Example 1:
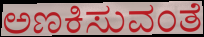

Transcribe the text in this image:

ಅಣಕಿಸುವಂತೆ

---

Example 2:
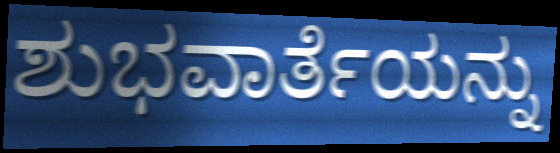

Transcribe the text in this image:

ಶುಭವಾರ್ತೆಯನ್ನು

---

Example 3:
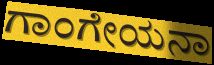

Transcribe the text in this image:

ಗಾಂಗೇಯನಾ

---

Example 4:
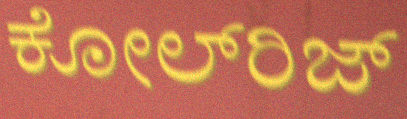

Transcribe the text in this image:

ಕೋಲ್‍ರಿಜ್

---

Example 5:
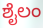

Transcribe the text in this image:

ಶೈಲಂ